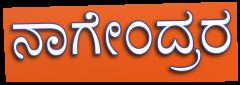
ನಾಗೇಂದ್ರರ